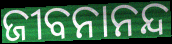
ଜୀବନାନନ୍ଦ